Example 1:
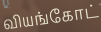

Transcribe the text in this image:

வியங்கோட்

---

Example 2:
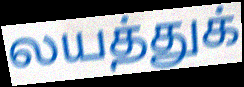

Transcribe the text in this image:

லயத்துக்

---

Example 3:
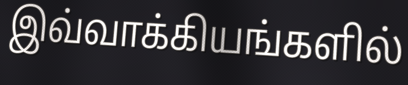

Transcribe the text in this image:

இவ்வாக்கியங்களில்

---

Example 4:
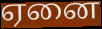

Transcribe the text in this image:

ஏனை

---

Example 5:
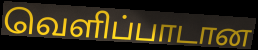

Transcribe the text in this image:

வெளிப்பாடான